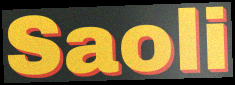
Saoli